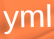
yml